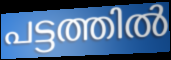
പട്ടത്തിൽ